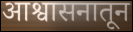
आश्वासनातून